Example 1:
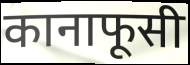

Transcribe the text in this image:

कानाफूसी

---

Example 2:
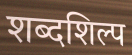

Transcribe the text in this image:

शब्दशिल्प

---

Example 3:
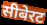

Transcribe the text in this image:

सीबेरट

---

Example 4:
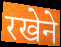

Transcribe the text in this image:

रखेने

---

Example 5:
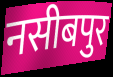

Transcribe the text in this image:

नसीबपुर